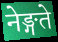
नेङ्गते